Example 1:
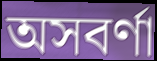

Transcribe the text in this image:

অসবর্ণা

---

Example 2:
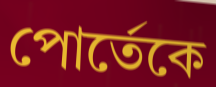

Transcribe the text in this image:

পোর্তেকে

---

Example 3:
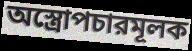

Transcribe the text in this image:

অস্ত্রোপচারমূলক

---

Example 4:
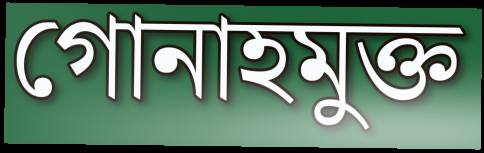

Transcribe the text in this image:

গোনাহমুক্ত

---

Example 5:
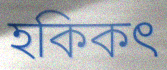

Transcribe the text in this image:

হকিকৎ